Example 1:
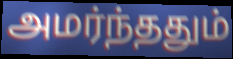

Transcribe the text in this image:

அமர்ந்ததும்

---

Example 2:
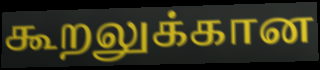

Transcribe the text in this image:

கூறலுக்கான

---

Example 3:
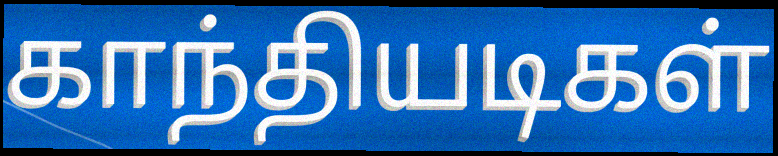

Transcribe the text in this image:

காந்தியடிகள்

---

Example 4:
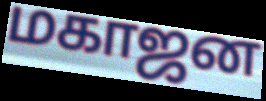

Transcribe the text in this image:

மகாஜன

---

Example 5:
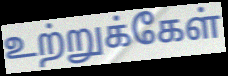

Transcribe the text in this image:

உற்றுக்கேள்